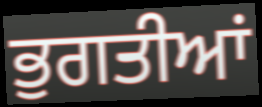
ਭੁਗਤੀਆਂ